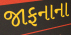
જાફનાના